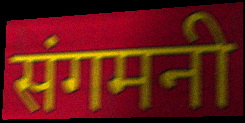
संगमनी